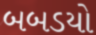
બબડયો